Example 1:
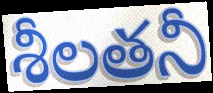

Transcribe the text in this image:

శీలతనీ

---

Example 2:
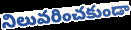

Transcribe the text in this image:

నిలువరించకుండా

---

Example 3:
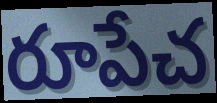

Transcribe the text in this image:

రూపేచ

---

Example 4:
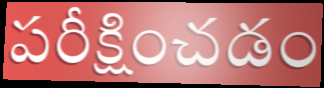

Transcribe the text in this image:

పరీక్షించడం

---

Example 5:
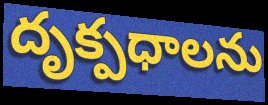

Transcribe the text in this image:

దృక్పధాలను